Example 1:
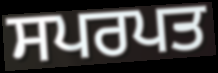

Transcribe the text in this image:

ਸਪਰਪਤ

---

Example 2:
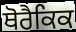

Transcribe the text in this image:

ਥੋਰੈਕਿਕ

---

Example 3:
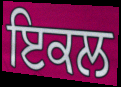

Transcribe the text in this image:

ਇਕਲ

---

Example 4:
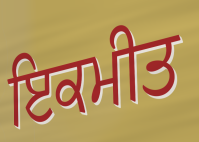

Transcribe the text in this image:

ਇਕਮੀਤ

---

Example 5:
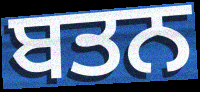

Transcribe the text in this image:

ਬਤਨ